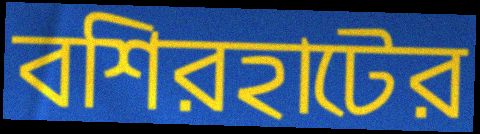
বশিরহাটের